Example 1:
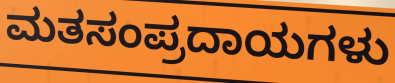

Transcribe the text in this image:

ಮತಸಂಪ್ರದಾಯಗಳು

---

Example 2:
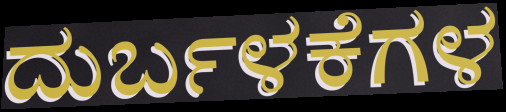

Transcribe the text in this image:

ದುರ್ಬಳಕೆಗಳ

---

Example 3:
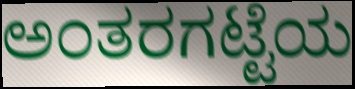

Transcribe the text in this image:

ಅಂತರಗಟ್ಟೆಯ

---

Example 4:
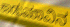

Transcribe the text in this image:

ಕಾಡುಮಾವಿನ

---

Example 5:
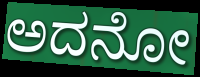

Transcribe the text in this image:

ಅದನೋ